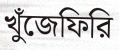
খুঁজেফিরি